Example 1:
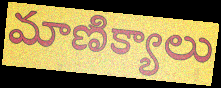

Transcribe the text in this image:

మాణిక్యాలు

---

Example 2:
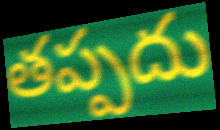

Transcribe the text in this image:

తప్పదు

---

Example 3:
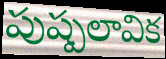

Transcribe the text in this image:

పుష్పలావిక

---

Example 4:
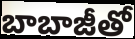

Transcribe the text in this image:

బాబాజీతో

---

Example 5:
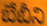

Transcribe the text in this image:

బేబీని